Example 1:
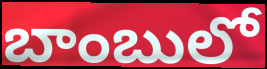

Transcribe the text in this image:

బాంబులో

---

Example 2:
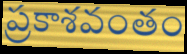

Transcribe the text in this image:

ప్రకాశవంతం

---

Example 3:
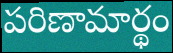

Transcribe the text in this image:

పరిణామార్థం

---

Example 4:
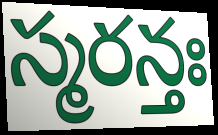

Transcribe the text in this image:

స్మరన్తః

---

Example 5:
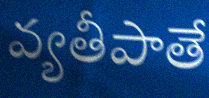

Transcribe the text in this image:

వ్యతీపాతే